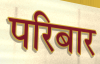
परिबार